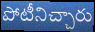
పోటీనిచ్చారు